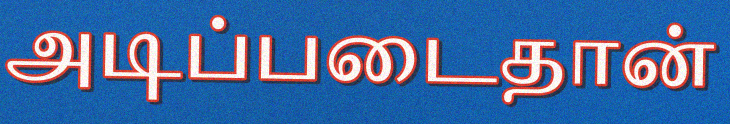
அடிப்படைதான்